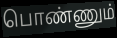
பொண்ணும்